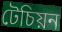
টেচিয়ন